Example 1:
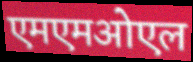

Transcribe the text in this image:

एमएमओएल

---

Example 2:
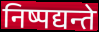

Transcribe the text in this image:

निष्पद्यन्ते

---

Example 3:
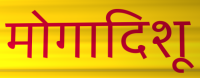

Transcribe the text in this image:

मोगादिशू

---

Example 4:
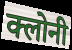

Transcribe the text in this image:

क्लोनी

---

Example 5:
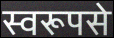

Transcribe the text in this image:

स्वरूपसे